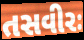
તસવીરઃ